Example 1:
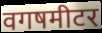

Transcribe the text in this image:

वगषमीटर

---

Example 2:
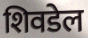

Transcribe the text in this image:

शिवडेल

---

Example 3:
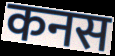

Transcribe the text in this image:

कनस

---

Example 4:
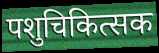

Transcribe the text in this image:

पशुचिकित्सक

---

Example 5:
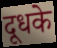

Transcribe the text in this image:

दूधके